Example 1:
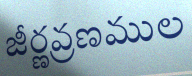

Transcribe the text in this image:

జీర్ణవ్రణముల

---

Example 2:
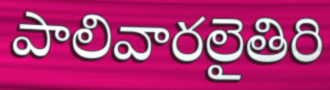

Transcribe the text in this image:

పాలివారలైతిరి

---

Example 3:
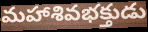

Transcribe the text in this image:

మహాశివభక్తుడు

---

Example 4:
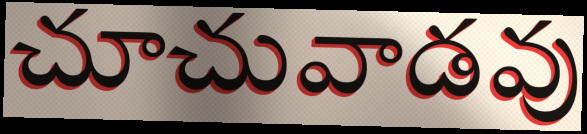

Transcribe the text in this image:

చూచువాడవు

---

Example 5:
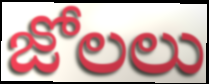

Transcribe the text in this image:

జోలలు